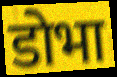
डोभा